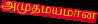
அமுதமயமான